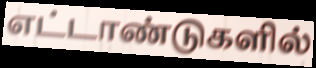
எட்டாண்டுகளில்